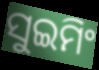
ସୁଇମିଂ